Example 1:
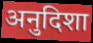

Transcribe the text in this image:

अनुदिशा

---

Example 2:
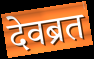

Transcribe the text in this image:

देवब्रत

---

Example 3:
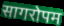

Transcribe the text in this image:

सागरोपम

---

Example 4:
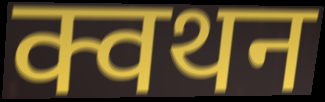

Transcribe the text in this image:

क्वथन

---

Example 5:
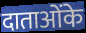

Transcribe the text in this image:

दाताओंके